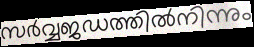
സർവ്വജഡത്തിൽനിന്നും